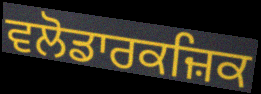
ਵਲੋਡਾਰਕਜ਼ਿਕ